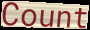
Count